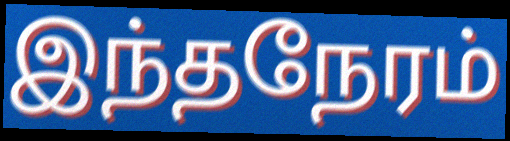
இந்தநேரம்